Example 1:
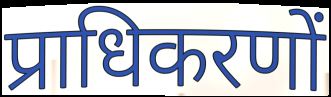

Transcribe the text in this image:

प्राधिकरणों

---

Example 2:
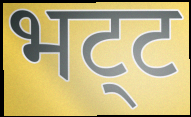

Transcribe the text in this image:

भट्‌ट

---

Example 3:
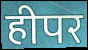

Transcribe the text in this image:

हीपर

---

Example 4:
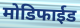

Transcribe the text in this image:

मोडिफाईड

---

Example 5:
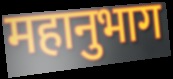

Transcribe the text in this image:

महानुभाग